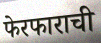
फेरफाराची